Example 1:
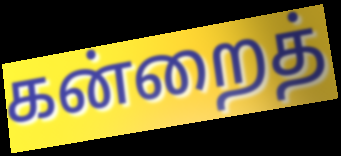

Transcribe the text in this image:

கன்றைத்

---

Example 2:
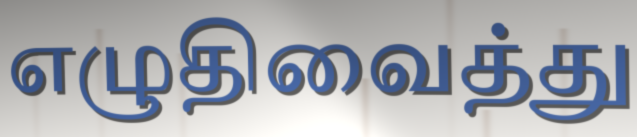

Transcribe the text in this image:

எழுதிவைத்து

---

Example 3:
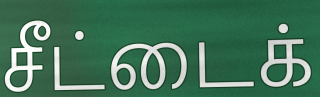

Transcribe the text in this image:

சீட்டைக்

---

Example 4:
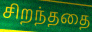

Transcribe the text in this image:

சிறந்ததை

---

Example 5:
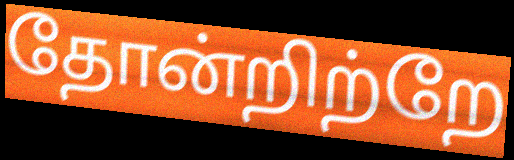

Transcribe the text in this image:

தோன்றிற்றே